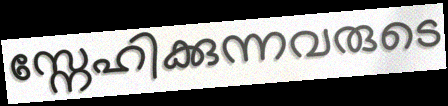
സ്നേഹിക്കുന്നവരുടെ